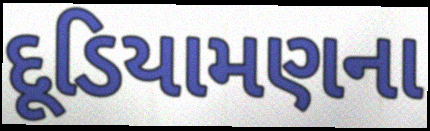
દૂડિયામણના